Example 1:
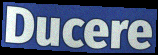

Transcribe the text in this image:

Ducere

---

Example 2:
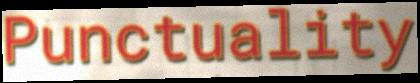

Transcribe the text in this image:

Punctuality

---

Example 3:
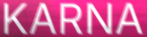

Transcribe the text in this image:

KARNA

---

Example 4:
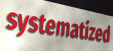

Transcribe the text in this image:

systematized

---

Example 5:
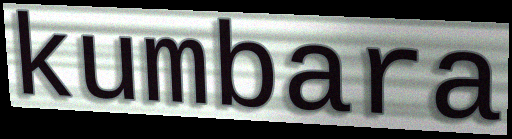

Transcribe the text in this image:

kumbara